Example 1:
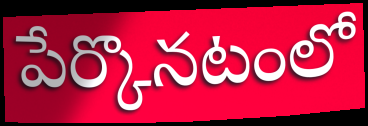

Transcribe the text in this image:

పేర్కొనటంలో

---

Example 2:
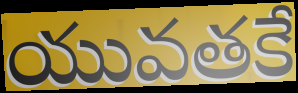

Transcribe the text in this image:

యువతకే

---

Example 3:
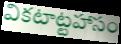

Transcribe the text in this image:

వికటాట్టహాసం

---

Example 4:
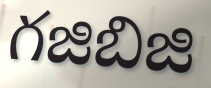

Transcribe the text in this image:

గజిబిజి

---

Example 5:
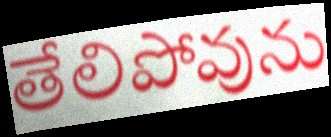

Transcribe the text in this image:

తేలిపోవును